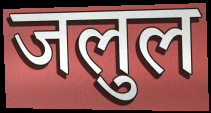
जलुल